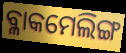
ବ୍ଳାକମେଲିଙ୍ଗ